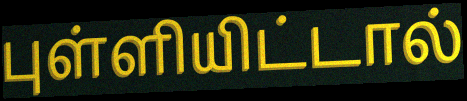
புள்ளியிட்டால்